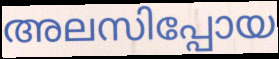
അലസിപ്പോയ